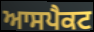
ਆਸਪੈਕਟ